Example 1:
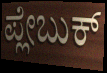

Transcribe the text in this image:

ಪ್ಲೇಬುಕ್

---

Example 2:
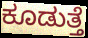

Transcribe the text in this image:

ಕೂಡುತ್ತೆ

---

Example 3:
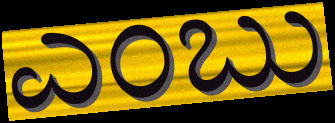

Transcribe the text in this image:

ಎಂಬು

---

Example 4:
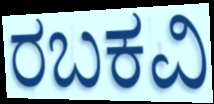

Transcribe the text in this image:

ರಬಕವಿ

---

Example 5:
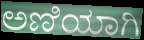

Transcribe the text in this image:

ಅಣಿಯಾಗಿ